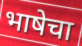
भाषेचा